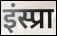
इंस्प्रा